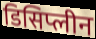
डिसिप्लीन